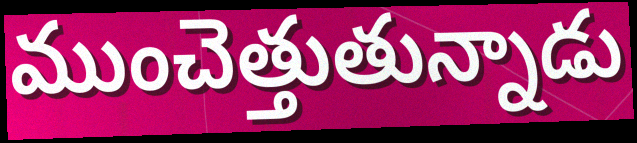
ముంచెత్తుతున్నాడు